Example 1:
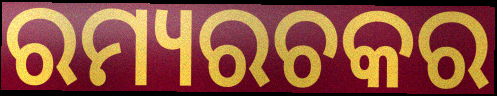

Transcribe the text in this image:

ରମ୍ୟରଚକର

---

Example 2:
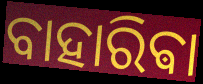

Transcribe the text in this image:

ବାହାରିଵା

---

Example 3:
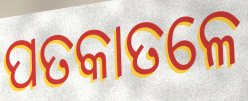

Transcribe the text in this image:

ପତକାତଳେ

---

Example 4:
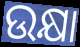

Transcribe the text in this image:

ଉକ୍ଷା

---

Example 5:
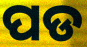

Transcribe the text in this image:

ପଡ